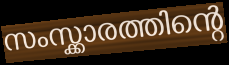
സംസ്ക്കാരത്തിന്റെ